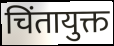
चिंतायुक्त